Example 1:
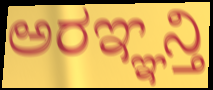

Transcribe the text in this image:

ಅರಞ್ಞನ್ತಿ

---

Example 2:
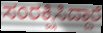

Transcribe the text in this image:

ಸಂರಕ್ಷಿಸಿದ್ದಾರೆ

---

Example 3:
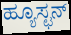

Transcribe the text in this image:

ಹ್ಯೂಸ್ಟನ್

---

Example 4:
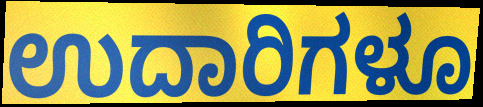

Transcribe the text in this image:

ಉದಾರಿಗಳೂ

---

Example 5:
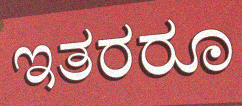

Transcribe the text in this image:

ಇತರರೂ